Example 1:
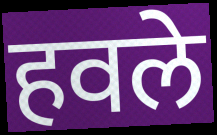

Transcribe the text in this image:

हवले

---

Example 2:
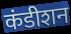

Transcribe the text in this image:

कंडीशन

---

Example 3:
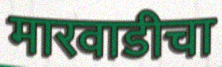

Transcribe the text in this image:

मारवाडीचा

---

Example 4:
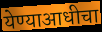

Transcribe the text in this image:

येण्याआधीचा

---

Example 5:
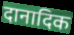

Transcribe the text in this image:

दानादिक